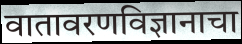
वातावरणविज्ञानाचा